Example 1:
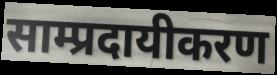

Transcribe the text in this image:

साम्प्रदायीकरण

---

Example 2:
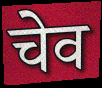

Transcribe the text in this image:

चेव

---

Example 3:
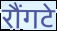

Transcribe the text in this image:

रौंगटे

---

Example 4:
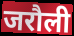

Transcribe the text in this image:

जरौली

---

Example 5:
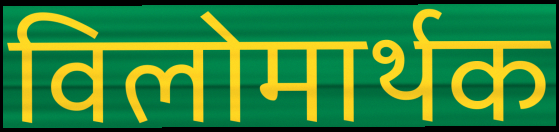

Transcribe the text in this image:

विलोमार्थक